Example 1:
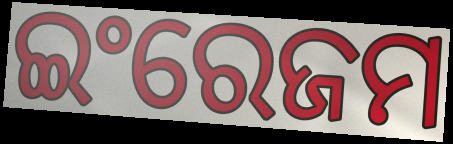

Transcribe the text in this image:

ଇଂରେଜମ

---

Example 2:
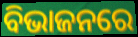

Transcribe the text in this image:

ବିଭାଜନରେ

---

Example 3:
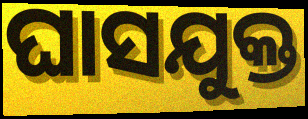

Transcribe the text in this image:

ଘାସଯୁକ୍ତ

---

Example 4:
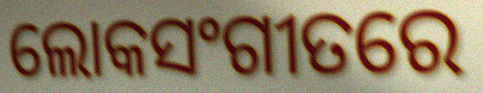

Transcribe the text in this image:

ଲୋକସଂଗୀତରେ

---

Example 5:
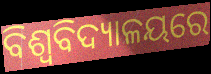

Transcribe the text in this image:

ବିଶ୍ୱବିଦ୍ୟାଳୟରେ